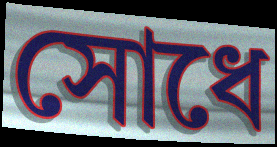
সোধে